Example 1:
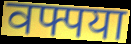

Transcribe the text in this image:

वफ्पया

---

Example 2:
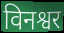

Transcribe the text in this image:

विनश्वर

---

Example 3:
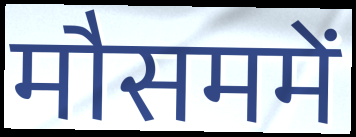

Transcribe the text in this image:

मौसममें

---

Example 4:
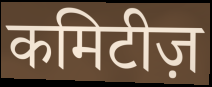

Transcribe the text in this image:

कमिटीज़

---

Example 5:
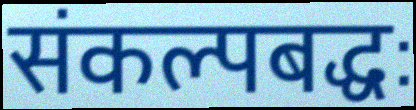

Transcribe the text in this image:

संकल्पबद्धः